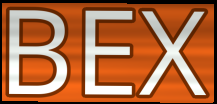
BEX